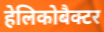
हेलिकोबैक्टर